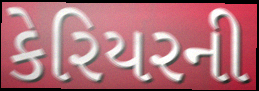
કેરિયરની